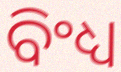
ବିଂଧ୍ୟ